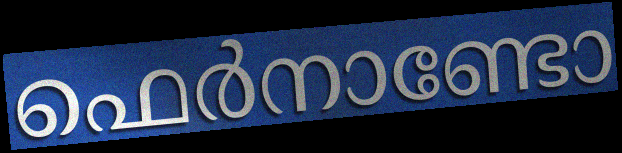
ഫെർനാണ്ടോ